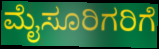
ಮೈಸೂರಿಗರಿಗೆ